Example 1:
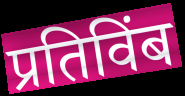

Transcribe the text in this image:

प्रतिविंब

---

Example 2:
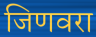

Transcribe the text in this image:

जिणवरा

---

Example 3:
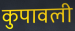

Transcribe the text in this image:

कुपावली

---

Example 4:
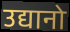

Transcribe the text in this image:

उद्यानो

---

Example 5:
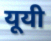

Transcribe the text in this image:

यूयी